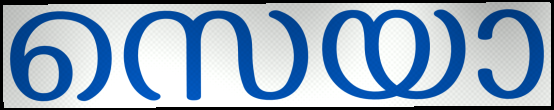
സെയാ